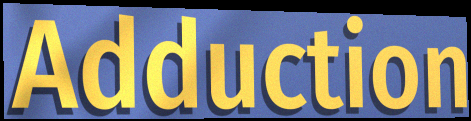
Adduction